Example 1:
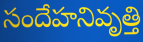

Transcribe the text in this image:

సందేహనివృత్తి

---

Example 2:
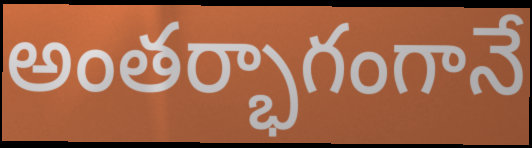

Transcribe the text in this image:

అంతర్భాగంగానే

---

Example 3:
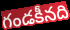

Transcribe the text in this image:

గండకీనది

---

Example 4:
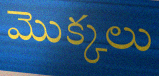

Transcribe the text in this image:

మొక్కలు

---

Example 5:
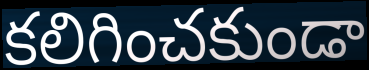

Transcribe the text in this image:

కలిగించకుండా